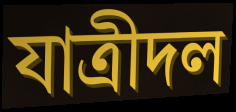
যাত্রীদল